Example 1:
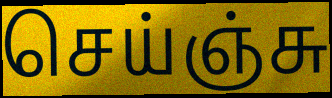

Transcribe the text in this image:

செய்ஞ்சு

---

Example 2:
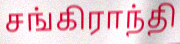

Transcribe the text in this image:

சங்கிராந்தி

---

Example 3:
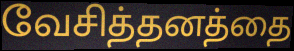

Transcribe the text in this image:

வேசித்தனத்தை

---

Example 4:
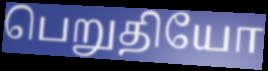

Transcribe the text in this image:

பெறுதியோ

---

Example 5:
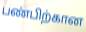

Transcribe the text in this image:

பண்பிற்கான